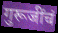
गुरूजींचं